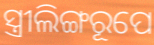
ସ୍ତ୍ରୀଲିଙ୍ଗରୂପେ